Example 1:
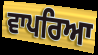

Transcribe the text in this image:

ਵਾਪਰਿਆ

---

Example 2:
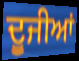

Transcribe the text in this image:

ਦੂਜੀਆਂ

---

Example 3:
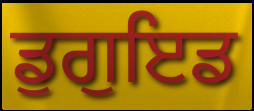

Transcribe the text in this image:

ਡੁਗੁਇਡ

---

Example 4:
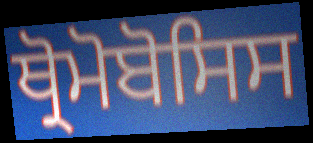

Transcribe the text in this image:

ਥ੍ਰੋਮੋਬੋਸਿਸ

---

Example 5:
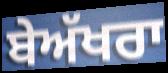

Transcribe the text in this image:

ਬੇਅੱਖਰਾ